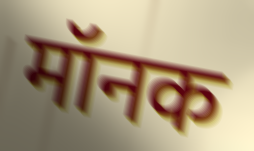
मॉनक